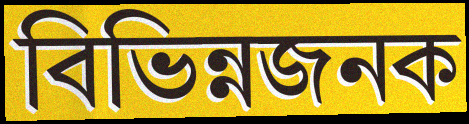
বিভিন্নজনক